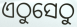
ଏଠୁସେଠୁ